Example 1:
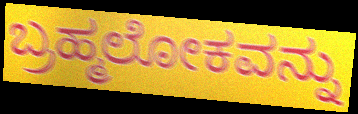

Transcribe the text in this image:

ಬ್ರಹ್ಮಲೋಕವನ್ನು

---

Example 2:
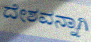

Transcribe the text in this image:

ದೇಶವನ್ನಾಗಿ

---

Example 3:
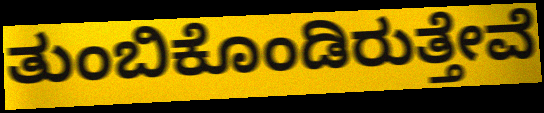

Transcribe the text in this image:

ತುಂಬಿಕೊಂಡಿರುತ್ತೇವೆ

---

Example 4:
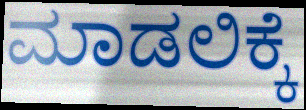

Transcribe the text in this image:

ಮಾಡಲಿಕ್ಕೆ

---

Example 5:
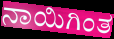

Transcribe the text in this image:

ನಾಯಿಗಿಂತ